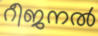
റീജനൽ